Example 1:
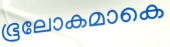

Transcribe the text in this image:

ഭൂലോകമാകെ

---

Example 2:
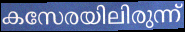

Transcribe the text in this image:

കസേരയിലിരുന്ന്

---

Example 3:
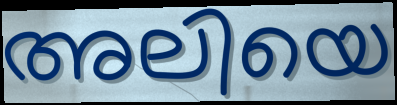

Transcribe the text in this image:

അലിയെ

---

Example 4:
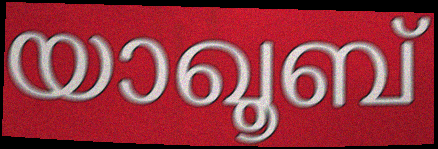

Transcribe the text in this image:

യാഖൂബ്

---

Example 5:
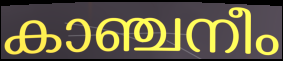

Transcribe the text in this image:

കാഞ്ചനീം